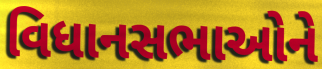
વિધાનસભાઓને